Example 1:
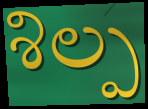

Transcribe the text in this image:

శిల్ప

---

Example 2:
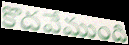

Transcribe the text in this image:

కొదవేముంది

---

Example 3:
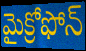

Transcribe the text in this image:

మైక్రోఫోన్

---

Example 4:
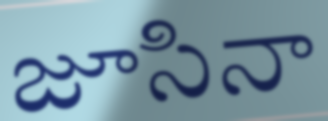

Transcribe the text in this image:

జూసినా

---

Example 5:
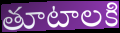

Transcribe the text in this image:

తూటాలకి